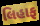
લિહાફ